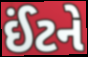
ઈંટને